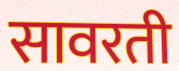
सावरती